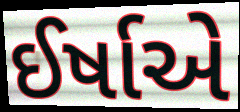
ઈર્ષાએ